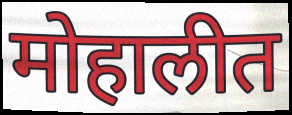
मोहालीत